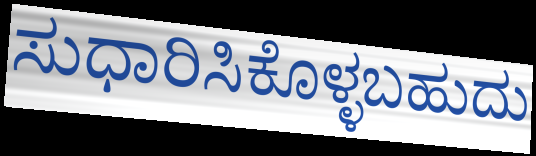
ಸುಧಾರಿಸಿಕೊಳ್ಳಬಹುದು